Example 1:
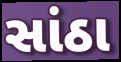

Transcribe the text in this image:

સાંઠા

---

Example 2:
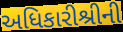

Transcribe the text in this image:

અધિકારીશ્રીની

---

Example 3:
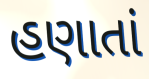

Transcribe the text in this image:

હણાતાં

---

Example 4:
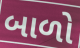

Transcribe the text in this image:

બાળો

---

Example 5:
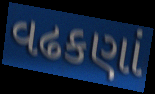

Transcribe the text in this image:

વઢકણાં